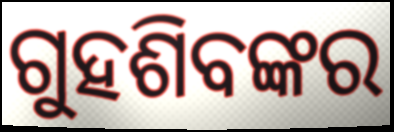
ଗୁହଶିବଙ୍କର